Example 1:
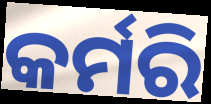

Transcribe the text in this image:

କର୍ମରି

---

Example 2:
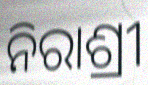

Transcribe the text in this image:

ନିରାଶ୍ରୀ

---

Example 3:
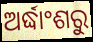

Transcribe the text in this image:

ଅର୍ଦ୍ଧାଂଶରୁ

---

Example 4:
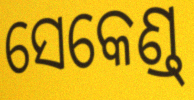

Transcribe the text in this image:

ସେକେଣ୍ଡ୍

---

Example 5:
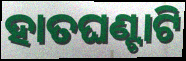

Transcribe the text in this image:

ହାତଘଣ୍ଟାଟି